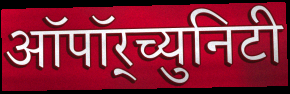
ऑपॉर्च्युनिटी